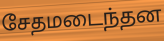
சேதமடைந்தன